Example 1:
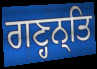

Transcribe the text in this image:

ਗਣ੍ਹਨ੍ਤਿ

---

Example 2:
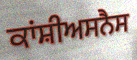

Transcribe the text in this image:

ਕਾਂਸ਼ੀਅਸਨੈਸ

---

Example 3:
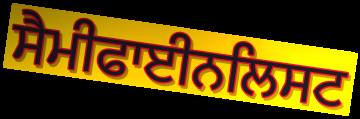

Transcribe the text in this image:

ਸੈਮੀਫਾਈਨਲਿਸਟ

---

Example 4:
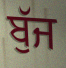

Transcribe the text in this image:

ਬੁੱਜ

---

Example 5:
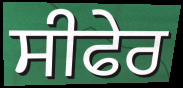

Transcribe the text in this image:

ਸੀਫੇਰ